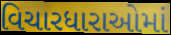
વિચારધારાઓમાં